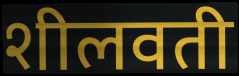
शीलवती